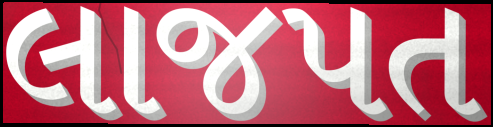
લાજપત